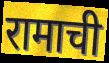
रामाची